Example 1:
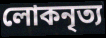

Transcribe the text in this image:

লোকনৃত্য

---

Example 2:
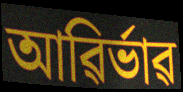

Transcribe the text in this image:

আৱিৰ্ভাৱ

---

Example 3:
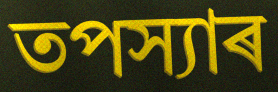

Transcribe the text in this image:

তপস্যাৰ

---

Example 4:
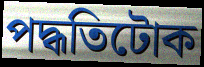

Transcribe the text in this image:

পদ্ধতিটোক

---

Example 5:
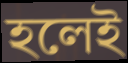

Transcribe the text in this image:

হলেই